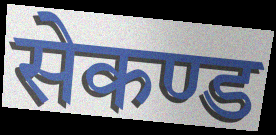
सेकण्ड